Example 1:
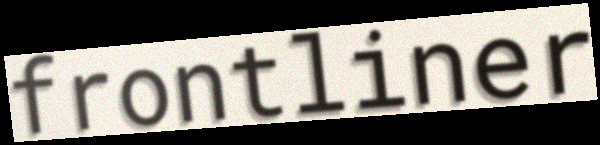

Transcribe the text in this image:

frontliner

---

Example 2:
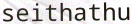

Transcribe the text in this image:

seithathu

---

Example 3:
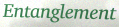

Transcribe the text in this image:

Entanglement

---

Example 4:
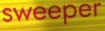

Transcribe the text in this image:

sweeper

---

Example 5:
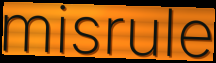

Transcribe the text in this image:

misrule